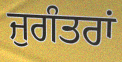
ਜੁਗੰਤਰਾਂ